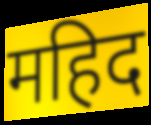
महिद